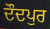
ਦੌਦਪੁਰ